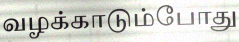
வழக்காடும்போது